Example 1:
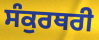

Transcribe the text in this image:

ਸੰਕੁਰਥਰੀ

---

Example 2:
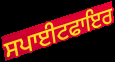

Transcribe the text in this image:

ਸਪਾਈਟਫਾਇਰ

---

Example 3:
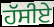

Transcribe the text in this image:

ਹੱਸੀਏ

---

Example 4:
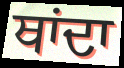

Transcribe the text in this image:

ਥਾਂਦਾ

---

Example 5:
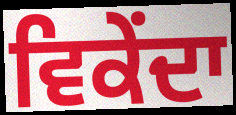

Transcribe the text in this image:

ਵਿਕੇਂਦਾ